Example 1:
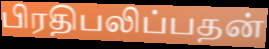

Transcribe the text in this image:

பிரதிபலிப்பதன்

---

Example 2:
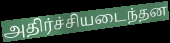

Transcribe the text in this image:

அதிர்ச்சியடைந்தன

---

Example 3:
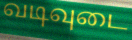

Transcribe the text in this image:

வடிவுடை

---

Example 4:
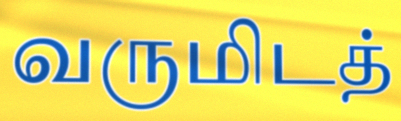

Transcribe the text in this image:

வருமிடத்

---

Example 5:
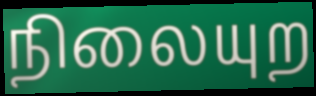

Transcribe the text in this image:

நிலையுற